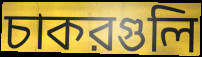
চাকরগুলি